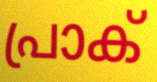
പ്രാക്